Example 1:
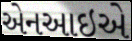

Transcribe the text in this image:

એનઆઇએ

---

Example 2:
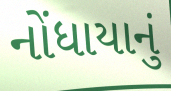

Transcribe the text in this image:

નોંધાયાનું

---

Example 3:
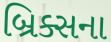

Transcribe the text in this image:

બ્રિક્સના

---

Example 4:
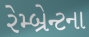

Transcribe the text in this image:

રેમ્બ્રેન્ટના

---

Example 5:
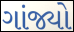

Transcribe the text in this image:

ગાંજ્યો